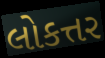
લોકત્તર